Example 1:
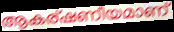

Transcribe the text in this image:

ആകര്ഷണീയമാണ്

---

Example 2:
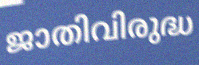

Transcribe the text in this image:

ജാതിവിരുദ്ധ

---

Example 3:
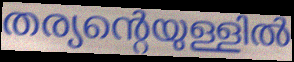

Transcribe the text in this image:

തര്യന്റെയുള്ളിൽ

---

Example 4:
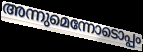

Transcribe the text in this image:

അന്നുമെന്നോടൊപ്പം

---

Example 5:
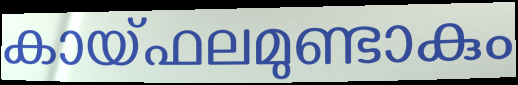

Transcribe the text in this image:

കായ്ഫലമുണ്ടാകും